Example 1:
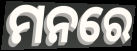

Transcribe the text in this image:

ମନରେ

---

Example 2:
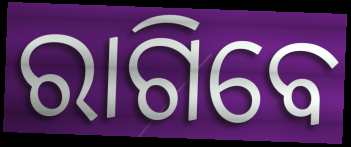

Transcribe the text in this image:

ରାଗିବେ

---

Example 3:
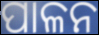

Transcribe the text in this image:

ପାଳନ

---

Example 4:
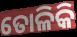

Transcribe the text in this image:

ତୋଳିକି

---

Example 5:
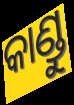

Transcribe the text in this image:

କାଣ୍ଡୁ